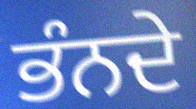
ਭੰਨਦੇ